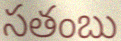
సతంబు